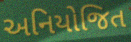
અનિયોજિત